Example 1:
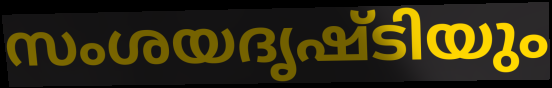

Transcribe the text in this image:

സംശയദൃഷ്ടിയും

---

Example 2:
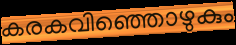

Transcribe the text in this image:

കരകവിഞ്ഞൊഴുകും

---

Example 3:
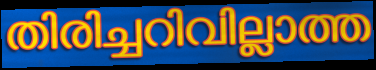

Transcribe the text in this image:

തിരിച്ചറിവില്ലാത്ത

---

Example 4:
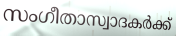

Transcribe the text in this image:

സംഗീതാസ്വാദകർക്ക്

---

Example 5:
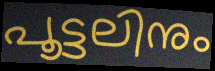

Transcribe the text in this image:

പൂട്ടലിനും